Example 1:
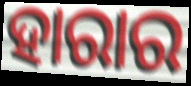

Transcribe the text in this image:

ହାରାର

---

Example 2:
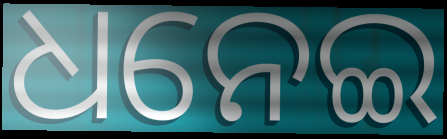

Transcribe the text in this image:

ଧନେଇ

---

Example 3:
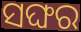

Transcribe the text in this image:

ସଙ୍ଘର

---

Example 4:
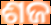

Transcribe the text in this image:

ଶଜ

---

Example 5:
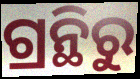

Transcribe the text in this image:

ଗ୍ରନ୍ଥିରୁ